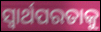
ସ୍ଵାର୍ଥପରତାକୁ